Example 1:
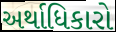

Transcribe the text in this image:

અર્થાધિકારો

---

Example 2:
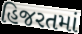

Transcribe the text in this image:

હિજરતમાં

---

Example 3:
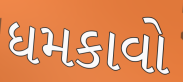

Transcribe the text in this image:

ધમકાવો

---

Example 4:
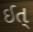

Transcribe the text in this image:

ઈત્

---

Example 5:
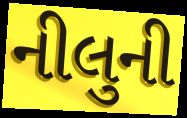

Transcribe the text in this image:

નીલુની